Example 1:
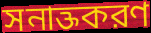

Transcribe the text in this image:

সনাক্তকরণ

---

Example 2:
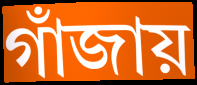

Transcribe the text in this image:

গাঁজায়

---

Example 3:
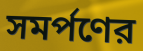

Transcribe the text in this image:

সমর্পণের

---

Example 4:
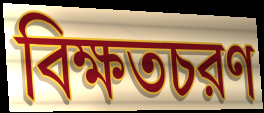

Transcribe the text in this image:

বিক্ষতচরণ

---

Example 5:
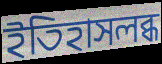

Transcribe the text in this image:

ইতিহাসলব্ধ